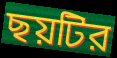
ছয়টির